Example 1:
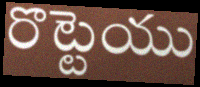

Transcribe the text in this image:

రొట్టెయు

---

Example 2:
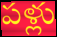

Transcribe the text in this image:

పళ్లు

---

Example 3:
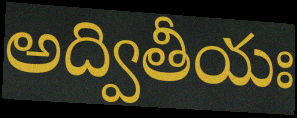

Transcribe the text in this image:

అద్వితీయః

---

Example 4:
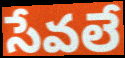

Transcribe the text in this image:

సేవలే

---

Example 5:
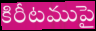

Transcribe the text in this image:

కిరీటముపై